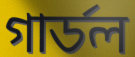
গার্ডল